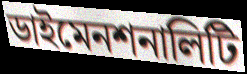
ডাইমেনশনালিটি